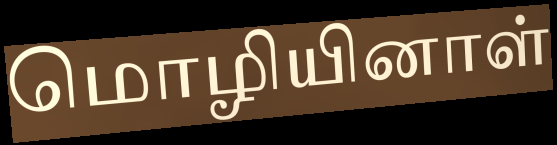
மொழியினாள்